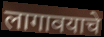
लागावयाचे